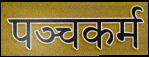
पञ्चकर्म